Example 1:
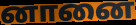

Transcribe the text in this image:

னானை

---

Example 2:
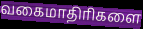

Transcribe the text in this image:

வகைமாதிரிகளை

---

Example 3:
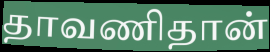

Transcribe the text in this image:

தாவணிதான்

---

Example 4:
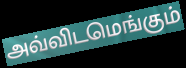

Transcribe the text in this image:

அவ்விடமெங்கும்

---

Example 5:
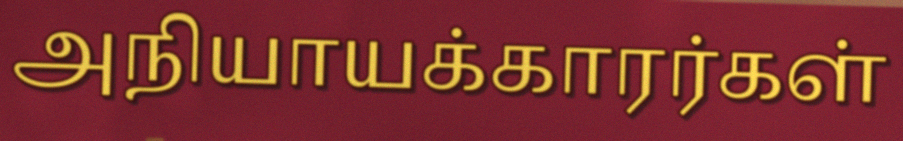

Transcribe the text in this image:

அநியாயக்காரர்கள்